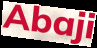
Abaji